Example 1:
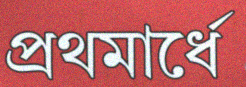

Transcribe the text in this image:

প্রথমার্ধে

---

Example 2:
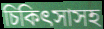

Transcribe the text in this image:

চিকিৎসাসহ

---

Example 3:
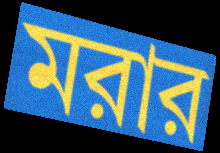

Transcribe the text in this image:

মরার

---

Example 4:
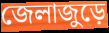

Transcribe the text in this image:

জেলাজুড়ে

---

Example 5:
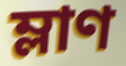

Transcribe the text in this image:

ম্লাণ